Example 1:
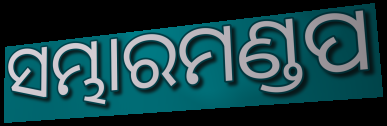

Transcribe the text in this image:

ସମ୍ଭାରମଣ୍ଡପ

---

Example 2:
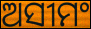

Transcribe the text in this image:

ଅସୀମଂ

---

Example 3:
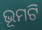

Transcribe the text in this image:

ଭୂମଟି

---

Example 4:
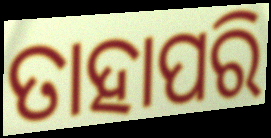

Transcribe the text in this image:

ତାହାପରି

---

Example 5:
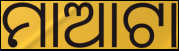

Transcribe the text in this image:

ମାଆଟା